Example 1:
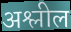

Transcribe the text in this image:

अश्लील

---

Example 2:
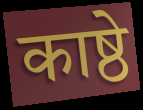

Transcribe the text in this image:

काष्ठे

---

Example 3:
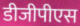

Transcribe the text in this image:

डीजीपीएस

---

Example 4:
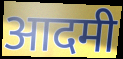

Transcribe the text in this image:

आदमी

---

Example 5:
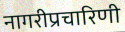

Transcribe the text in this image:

नागरीप्रचारिणी